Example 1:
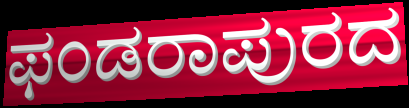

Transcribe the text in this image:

ಫಂಡರಾಪುರದ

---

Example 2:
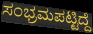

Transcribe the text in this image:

ಸಂಭ್ರಮಪಟ್ಟಿದ್ದೆ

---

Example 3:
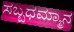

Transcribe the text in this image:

ಸಬ್ಬಧಮ್ಮಾನ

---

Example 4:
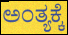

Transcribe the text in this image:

ಅಂತ್ಯಕ್ಕೆ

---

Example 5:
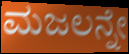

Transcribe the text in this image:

ಮಜಲನ್ನೇ